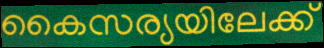
കൈസര്യയിലേക്ക്